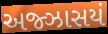
અજ્ઝાસયં